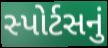
સ્પોર્ટસનું